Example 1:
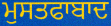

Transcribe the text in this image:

ਮੁਸਤਫਾਬਾਦ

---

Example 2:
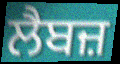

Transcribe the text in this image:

ਲੈਬਜ਼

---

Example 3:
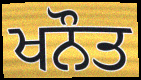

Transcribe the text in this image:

ਖਨੌਤ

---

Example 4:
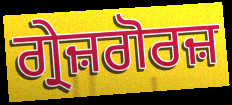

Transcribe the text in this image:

ਗ੍ਰੇਜ਼ਗੋਰਜ਼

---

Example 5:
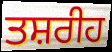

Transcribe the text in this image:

ਤਸ਼ਰੀਹ